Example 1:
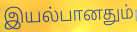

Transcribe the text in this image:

இயல்பானதும்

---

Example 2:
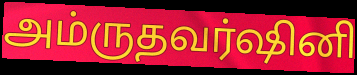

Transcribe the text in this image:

அம்ருதவர்ஷினி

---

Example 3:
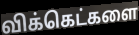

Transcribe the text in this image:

விக்கெட்களை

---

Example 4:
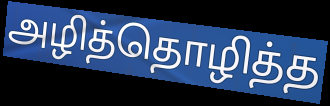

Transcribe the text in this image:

அழித்தொழித்த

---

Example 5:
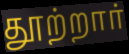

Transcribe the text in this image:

தூற்றார்